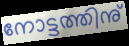
നോട്ടത്തിനു്